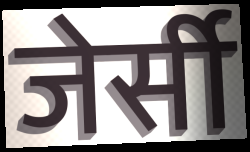
जेर्सी